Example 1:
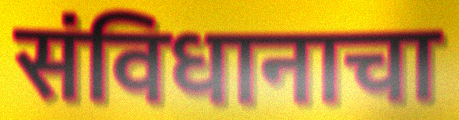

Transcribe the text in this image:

संविधानाचा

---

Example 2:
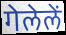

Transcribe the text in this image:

गेलेलें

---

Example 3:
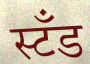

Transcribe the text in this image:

स्टँड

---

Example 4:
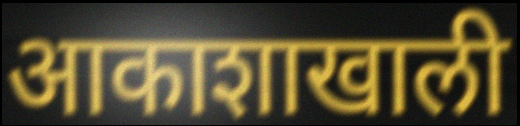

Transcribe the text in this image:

आकाशाखाली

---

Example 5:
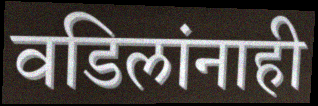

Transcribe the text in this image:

वडिलांनाही